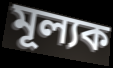
মূল্যক